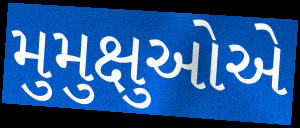
મુમુક્ષુઓએ